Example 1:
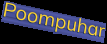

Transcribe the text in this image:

Poompuhar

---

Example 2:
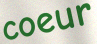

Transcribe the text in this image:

coeur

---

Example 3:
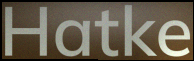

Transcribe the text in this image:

Hatke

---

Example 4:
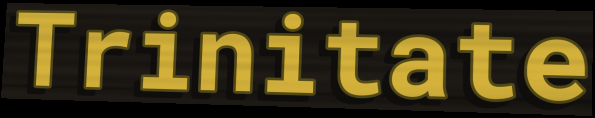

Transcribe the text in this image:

Trinitate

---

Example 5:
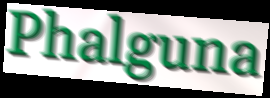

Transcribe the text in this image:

Phalguna